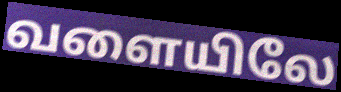
வளையிலே